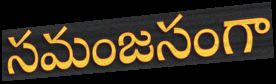
సమంజసంగా